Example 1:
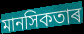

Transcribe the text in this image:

মানসিকতাৰ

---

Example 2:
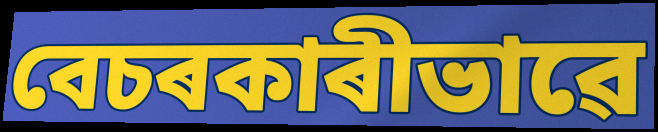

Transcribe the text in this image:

বেচৰকাৰীভাৱে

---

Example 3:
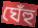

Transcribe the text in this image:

ঘেঁহু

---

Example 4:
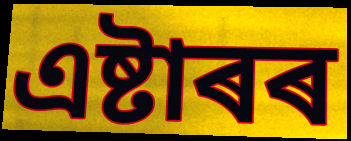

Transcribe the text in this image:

এষ্টাৰৰ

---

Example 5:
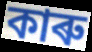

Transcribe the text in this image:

কাৰু